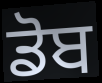
ਡੋਬ